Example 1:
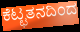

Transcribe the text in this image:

ಕೆಟ್ಟತನದಿಂದ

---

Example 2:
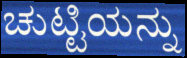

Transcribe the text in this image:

ಚುಟ್ಟಿಯನ್ನು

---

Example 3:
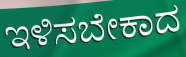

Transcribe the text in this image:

ಇಳಿಸಬೇಕಾದ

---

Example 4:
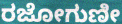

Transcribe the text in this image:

ರಜೋಗುಣೀ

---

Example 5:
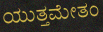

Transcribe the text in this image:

ಯುತ್ತಮೇತಂ